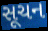
સૂચન